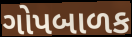
ગોપબાળક